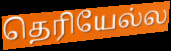
தெரியேல்ல